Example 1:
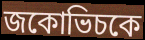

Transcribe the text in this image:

জকোভিচকে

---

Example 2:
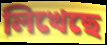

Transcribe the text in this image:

লিখেছে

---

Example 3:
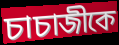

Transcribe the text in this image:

চাচাজীকে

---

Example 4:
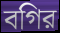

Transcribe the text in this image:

বগির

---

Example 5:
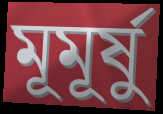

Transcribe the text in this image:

মূমূর্ষু